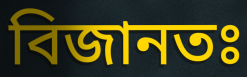
বিজানতঃ